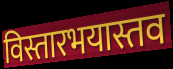
विस्तारभयास्तव